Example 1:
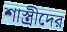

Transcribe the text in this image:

শাস্ত্রীদের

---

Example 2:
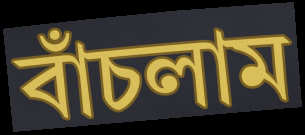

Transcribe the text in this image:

বাঁচলাম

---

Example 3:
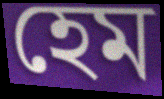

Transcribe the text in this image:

হেম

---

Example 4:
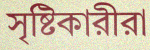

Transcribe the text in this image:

সৃষ্টিকারীরা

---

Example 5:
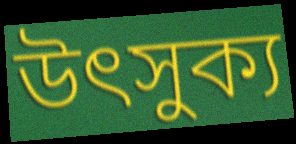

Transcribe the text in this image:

উৎসুক্য